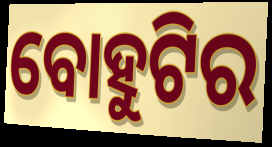
ବୋହୁଟିର